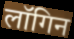
लॉगिन